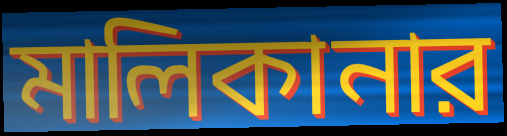
মালিকানার